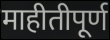
माहीतीपूर्ण